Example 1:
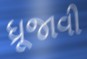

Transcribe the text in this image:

ધ્રૂજાવી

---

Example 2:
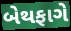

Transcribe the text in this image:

બેથફાગે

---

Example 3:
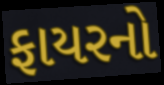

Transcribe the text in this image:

ફાયરનો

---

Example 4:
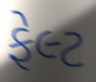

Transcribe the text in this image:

ફેલ્ટ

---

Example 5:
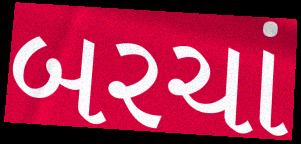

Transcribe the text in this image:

બરચાં